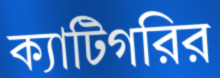
ক্যাটিগরির